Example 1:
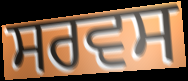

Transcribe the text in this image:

ਸਰਵਸ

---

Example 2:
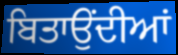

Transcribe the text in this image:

ਬਿਤਾਉਂਦੀਆਂ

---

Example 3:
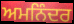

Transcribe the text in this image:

ਅਮਨਿੰਦਰ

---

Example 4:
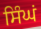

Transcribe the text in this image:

ਸਿੰਘਂ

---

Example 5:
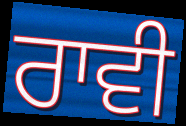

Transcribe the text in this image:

ਰਾਵੀ